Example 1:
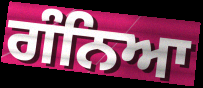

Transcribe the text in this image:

ਗੰਨਿਆ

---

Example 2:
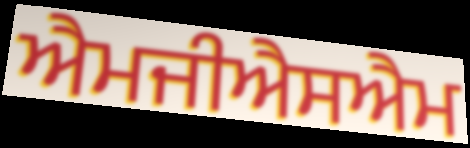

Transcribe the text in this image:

ਐਮਜੀਐਸਐਮ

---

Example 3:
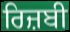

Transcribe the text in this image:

ਰਿਜ਼ਬੀ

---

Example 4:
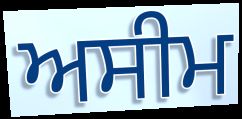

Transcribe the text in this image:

ਅਸੀਮ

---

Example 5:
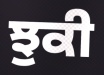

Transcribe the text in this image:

ਝੁਕੀ